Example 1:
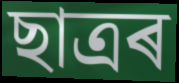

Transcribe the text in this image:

ছাত্ৰৰ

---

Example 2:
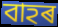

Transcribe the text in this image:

বাহৰ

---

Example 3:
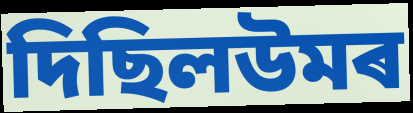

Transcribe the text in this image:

দিছিলউমৰ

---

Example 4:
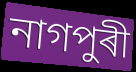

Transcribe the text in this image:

নাগপুৰী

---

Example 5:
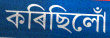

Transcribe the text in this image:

কৰিছিলোঁ